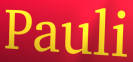
Pauli